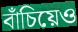
বাঁচিয়েও